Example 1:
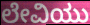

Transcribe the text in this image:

ಲೇವಿಯು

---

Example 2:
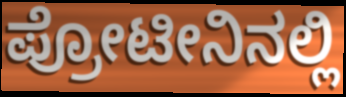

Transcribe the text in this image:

ಪ್ರೋಟೀನಿನಲ್ಲಿ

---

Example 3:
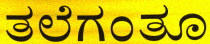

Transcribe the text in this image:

ತಲೆಗಂತೂ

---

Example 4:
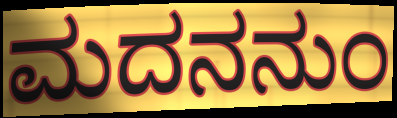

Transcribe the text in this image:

ಮದನನುಂ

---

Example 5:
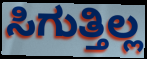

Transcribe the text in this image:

ಸಿಗುತ್ತಿಲ್ಲ